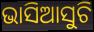
ଭାସିଆସୁଚି